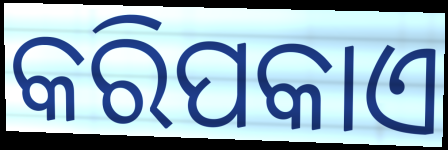
କରିପକାଏ